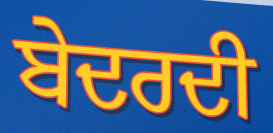
ਬੇਦਰਦੀ